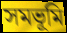
সমভূমি